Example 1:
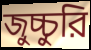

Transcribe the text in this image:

জুচ্চুরি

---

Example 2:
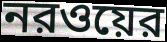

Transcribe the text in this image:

নরওয়ের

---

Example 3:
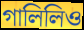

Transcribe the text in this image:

গালিলিও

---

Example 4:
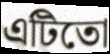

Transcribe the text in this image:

এটিতো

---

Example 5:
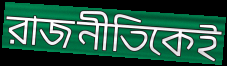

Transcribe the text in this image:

রাজনীতিকেই